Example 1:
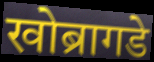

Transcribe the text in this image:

खोब्रागडे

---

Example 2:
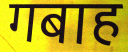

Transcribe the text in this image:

गबाह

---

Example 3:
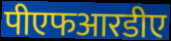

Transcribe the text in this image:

पीएफआरडीए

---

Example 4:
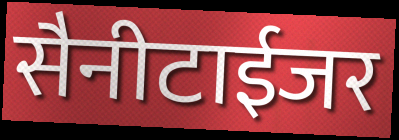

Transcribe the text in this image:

सैनीटाईजर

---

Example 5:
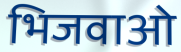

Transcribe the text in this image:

भिजवाओ